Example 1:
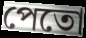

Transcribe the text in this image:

পেতো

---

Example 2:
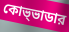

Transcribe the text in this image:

কোভ্ভাডার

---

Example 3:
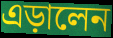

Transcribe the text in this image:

এড়ালেন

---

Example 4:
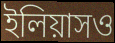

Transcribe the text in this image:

ইলিয়াসও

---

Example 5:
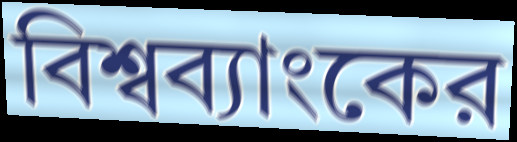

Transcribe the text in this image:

বিশ্বব্যাংকের